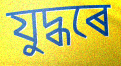
যুদ্ধৰে